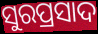
ସୁରପ୍ରସାଦ